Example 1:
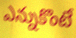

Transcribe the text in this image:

ఎన్నుకొంటే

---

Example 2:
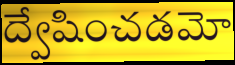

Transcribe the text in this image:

ద్వేషించడమో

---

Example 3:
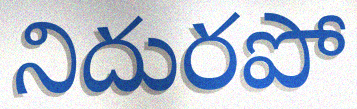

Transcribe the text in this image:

నిదురపో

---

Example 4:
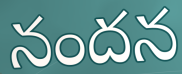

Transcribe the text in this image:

నందన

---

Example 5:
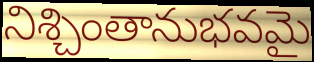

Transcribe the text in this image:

నిశ్చింతానుభవమై